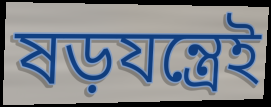
ষড়যন্ত্রেই